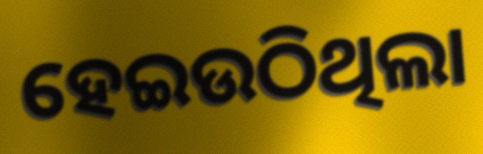
ହେଇଉଠିଥିଲା